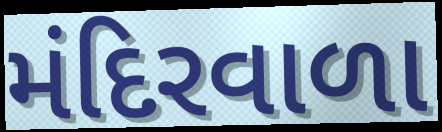
મંદિરવાળા